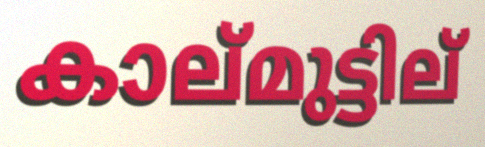
കാല്മുട്ടില്